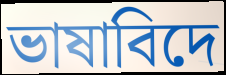
ভাষাবিদে